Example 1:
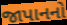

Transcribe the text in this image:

જાપાનનો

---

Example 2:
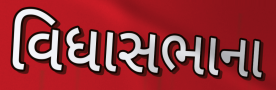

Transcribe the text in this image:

વિધાસભાના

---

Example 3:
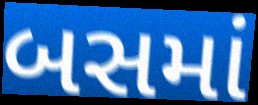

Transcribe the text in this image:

બસમાં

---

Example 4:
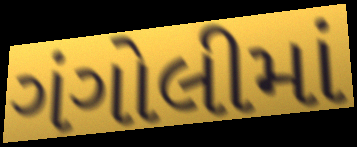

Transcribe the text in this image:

ગંગોલીમાં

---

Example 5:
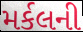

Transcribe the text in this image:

મર્કલની